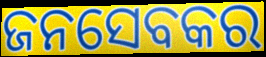
ଜନସେବକର